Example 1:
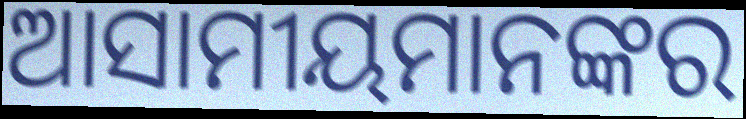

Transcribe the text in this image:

ଆସାମୀୟମାନଙ୍କର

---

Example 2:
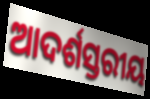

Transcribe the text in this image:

ଆଦର୍ଶସ୍ତରୀୟ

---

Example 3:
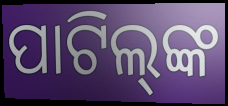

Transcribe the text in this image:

ପାଟିଲ୍‌ଙ୍କ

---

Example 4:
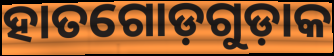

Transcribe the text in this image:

ହାତଗୋଡ଼ଗୁଡ଼ାକ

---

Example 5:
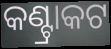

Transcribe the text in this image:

କଣ୍ଟ୍ରାକଟ